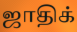
ஜாதிக்